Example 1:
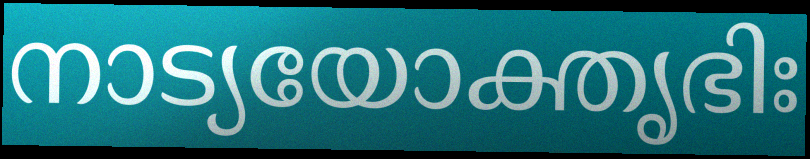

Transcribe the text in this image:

നാട്യയോക്തൃഭിഃ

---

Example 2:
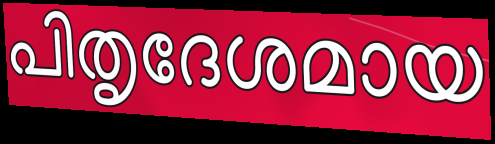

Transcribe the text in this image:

പിതൃദേശമായ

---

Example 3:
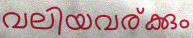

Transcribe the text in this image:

വലിയവര്ക്കും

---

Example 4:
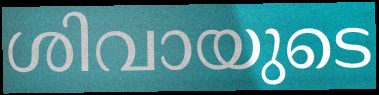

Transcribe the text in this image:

ശിവായുടെ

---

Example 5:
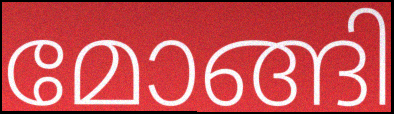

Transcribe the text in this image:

മോങ്ങി